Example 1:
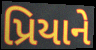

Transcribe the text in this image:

પ્રિયાને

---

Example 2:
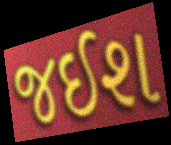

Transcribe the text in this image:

જઈશ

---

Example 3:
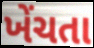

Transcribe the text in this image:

ખેંચતા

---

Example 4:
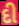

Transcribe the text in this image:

દી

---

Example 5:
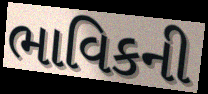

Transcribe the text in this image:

ભાવિકની